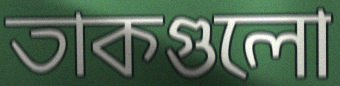
তাকগুলো